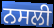
ਨਸਲੀ